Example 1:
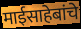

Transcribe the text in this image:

माईसाहेबांचे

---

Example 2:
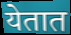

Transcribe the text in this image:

येतात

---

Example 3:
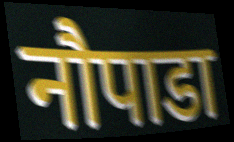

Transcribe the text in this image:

नौपाडा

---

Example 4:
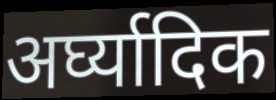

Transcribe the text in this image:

अर्घ्यादिक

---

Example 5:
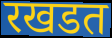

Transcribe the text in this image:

रखडत